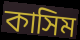
কাসিম